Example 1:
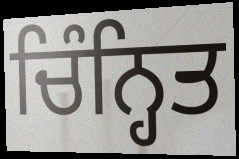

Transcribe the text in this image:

ਚਿੰਨ੍ਹਿਤ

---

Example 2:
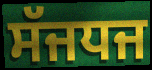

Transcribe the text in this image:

ਸੱਜਧਜ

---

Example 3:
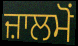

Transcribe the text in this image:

ਜ਼ਾਲਮੋਂ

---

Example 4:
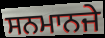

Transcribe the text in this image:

ਸਨਮਾਨਜੇ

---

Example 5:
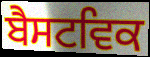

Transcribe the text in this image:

ਬੈਸਟਵਿਕ